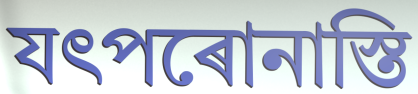
যৎপৰোনাস্তি